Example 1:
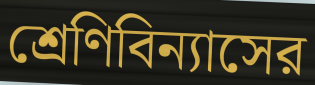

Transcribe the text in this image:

শ্রেণিবিন্যাসের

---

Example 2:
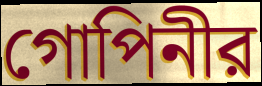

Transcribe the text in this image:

গোপিনীর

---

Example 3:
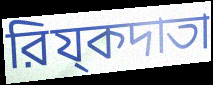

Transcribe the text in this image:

রিয্কদাতা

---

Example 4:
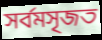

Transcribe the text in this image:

সর্বমসৃজত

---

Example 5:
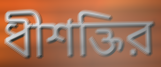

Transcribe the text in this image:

ধীশক্তির